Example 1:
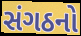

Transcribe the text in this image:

સંગઠનો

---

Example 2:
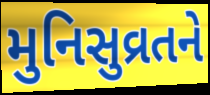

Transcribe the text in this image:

મુનિસુવ્રતને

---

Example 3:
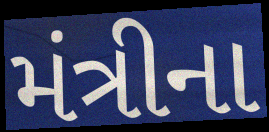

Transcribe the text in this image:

મંત્રીના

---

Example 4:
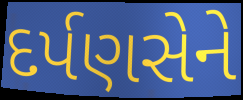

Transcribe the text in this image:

દર્પણસેને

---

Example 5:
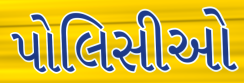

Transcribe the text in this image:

પોલિસીઓ